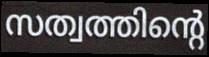
സത്വത്തിന്റെ